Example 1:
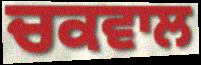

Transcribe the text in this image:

ਚਕਵਾਲ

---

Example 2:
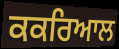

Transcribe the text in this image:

ਕਕਰਿਆਲ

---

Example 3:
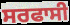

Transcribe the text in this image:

ਸਰਫਾਸੀ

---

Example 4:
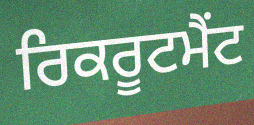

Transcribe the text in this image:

ਰਿਕਰੂਟਮੈਂਟ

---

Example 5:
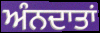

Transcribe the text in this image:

ਅੰਨਦਾਤਾਂ